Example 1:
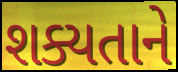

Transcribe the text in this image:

શક્યતાને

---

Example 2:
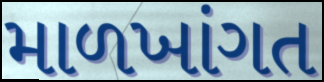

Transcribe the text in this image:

માળખાંગત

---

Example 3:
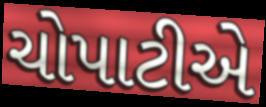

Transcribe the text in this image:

ચોપાટીએ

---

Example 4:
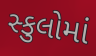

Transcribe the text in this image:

સ્કુલોમાં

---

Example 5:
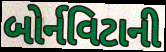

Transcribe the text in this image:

બોર્નવિટાની